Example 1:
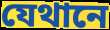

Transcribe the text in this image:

যেথানে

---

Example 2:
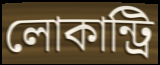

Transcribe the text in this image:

লোকান্ট্রি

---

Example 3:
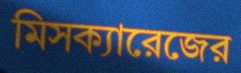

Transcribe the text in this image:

মিসক্যারেজের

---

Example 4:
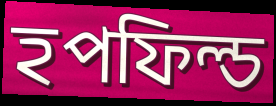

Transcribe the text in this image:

হপফিল্ড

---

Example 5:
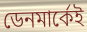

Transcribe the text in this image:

ডেনমার্কেই